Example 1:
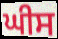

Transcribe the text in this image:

ਘੀਸ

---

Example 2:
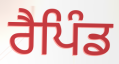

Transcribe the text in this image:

ਰੈਪਿੰਡ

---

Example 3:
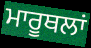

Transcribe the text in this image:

ਮਾਰੂਥਲਾਂ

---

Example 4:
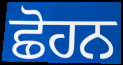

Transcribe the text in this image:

ਛੋਹਨ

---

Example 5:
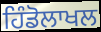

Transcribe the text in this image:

ਹਿੰਡੋਲਾਖਲ